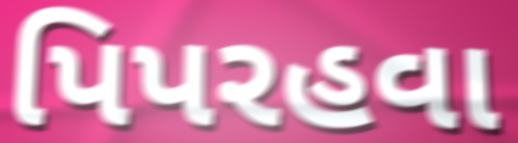
પિપરહવા